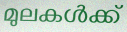
മുലകൾക്ക്